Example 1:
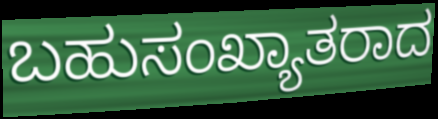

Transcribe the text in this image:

ಬಹುಸಂಖ್ಯಾತರಾದ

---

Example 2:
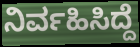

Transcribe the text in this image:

ನಿರ್ವಹಿಸಿದ್ದೆ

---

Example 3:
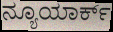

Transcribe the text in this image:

ನ್ಯೂಯಾರ್ಕ್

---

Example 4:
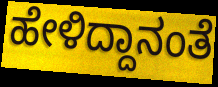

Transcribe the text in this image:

ಹೇಳಿದ್ದಾನಂತೆ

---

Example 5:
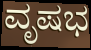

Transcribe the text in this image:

ವೃಷಭ